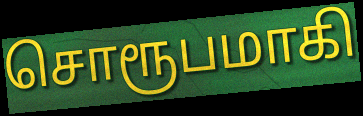
சொரூபமாகி